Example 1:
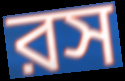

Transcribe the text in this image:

রস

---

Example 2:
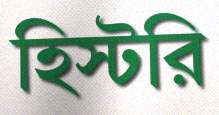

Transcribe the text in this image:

হিস্টরি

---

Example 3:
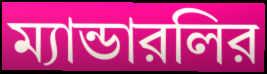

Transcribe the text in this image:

ম্যান্ডারলির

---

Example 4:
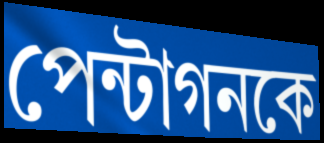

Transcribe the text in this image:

পেন্টাগনকে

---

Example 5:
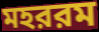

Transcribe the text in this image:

মহররম